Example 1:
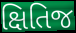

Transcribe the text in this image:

ક્ષિતિજ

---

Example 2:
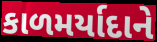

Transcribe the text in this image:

કાળમર્યાદાને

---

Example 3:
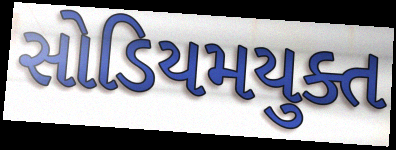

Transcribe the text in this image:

સોડિયમયુક્ત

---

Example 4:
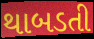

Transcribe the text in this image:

થાબડતી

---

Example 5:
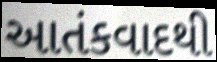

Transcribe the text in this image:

આતંકવાદથી